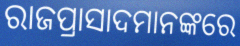
ରାଜପ୍ରାସାଦମାନଙ୍କରେ